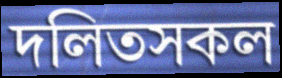
দলিতসকল